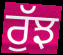
ਰੁੱਝ